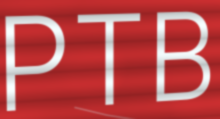
PTB